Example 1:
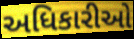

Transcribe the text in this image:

અધિકારીઓ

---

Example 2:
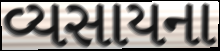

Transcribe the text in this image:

વ્યસાયના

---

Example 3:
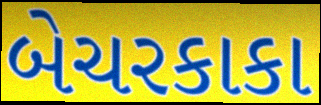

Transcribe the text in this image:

બેચરકાકા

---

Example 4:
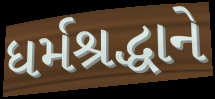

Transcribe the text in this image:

ધર્મશ્રદ્ધાને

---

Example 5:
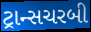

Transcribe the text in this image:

ટ્રાન્સચરબી